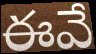
ఈవే